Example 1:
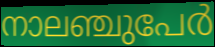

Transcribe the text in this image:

നാലഞ്ചുപേർ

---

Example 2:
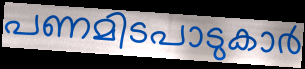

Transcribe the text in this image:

പണമിടപാടുകാർ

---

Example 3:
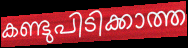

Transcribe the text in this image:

കണ്ടുപിടിക്കാത്ത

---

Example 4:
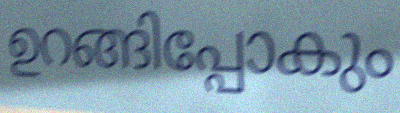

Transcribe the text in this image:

ഉറങ്ങിപ്പോകും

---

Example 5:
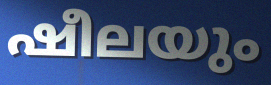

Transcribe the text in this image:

ഷീലയും